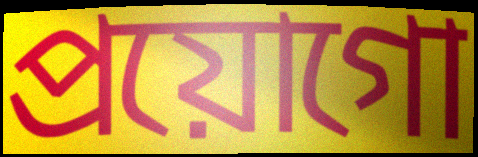
প্ৰয়োগো